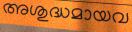
അശുദ്ധമായവ